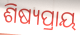
ଶିଷ୍ୟପ୍ରାୟ